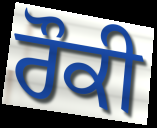
ਰੌਕੀ